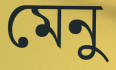
মেনু